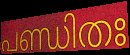
പണ്ഡിതഃ